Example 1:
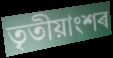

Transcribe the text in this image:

তৃতীয়াংশৰ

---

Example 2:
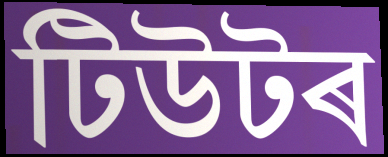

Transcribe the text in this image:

টিউটৰ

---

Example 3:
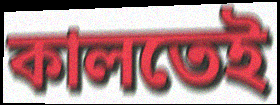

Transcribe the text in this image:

কালতেই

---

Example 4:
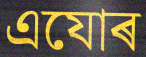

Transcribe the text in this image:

এযোৰ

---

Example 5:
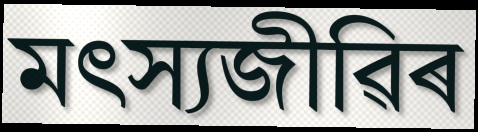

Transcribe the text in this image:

মৎস্যজীৱিৰ